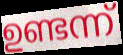
ഉണ്ടന്ന്